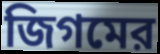
জিগমের